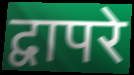
द्वापरे